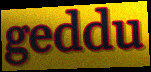
geddu